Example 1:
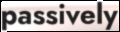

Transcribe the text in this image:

passively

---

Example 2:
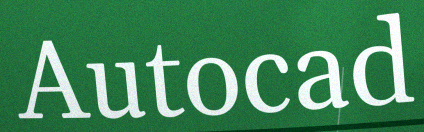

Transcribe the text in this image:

Autocad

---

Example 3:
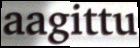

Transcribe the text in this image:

aagittu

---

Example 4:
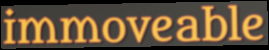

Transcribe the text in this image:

immoveable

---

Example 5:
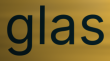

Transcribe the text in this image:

glas